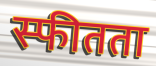
स्फीतता